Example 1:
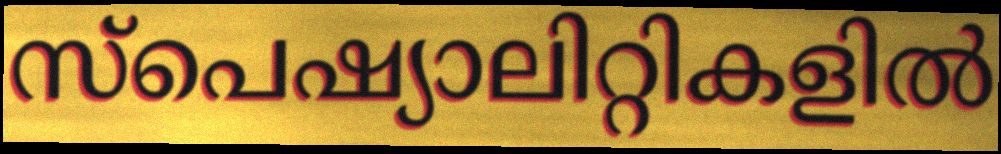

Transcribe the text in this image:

സ്പെഷ്യാലിറ്റികളിൽ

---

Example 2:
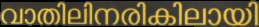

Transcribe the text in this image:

വാതിലിനരികിലായി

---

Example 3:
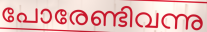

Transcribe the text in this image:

പോരേണ്ടിവന്നു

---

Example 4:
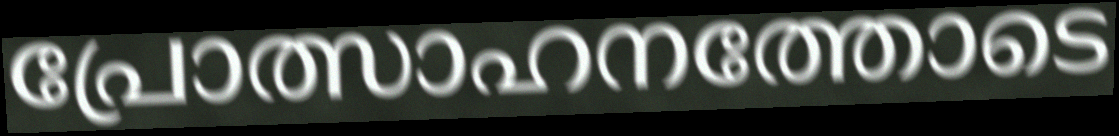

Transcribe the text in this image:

പ്രോത്സാഹനത്തോടെ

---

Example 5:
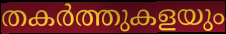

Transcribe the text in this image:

തകർത്തുകളയും